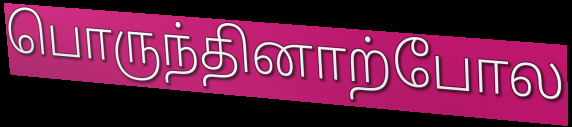
பொருந்தினாற்போல